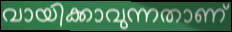
വായിക്കാവുന്നതാണ്